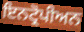
ਇਨਟ੍ਰੋਪੀਅਨ